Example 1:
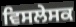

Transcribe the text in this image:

ਵਿਸਲੇਸਕ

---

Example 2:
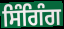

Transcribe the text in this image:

ਸਿੰਗਿੰਗ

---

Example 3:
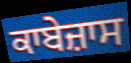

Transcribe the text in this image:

ਕਾਬੇਜ਼ਾਸ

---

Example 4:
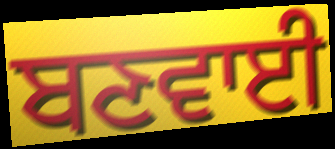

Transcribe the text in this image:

ਬਣਵਾਈ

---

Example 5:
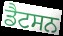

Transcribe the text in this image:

ਡੈਟਸਨ